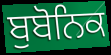
ਬੁਬੋਨਿਕ